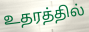
உதரத்தில்